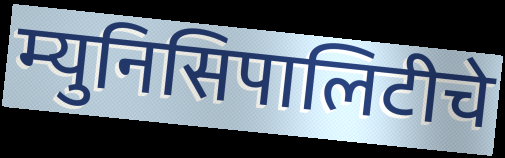
म्युनिसिपालिटीचे